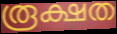
രൂക്ഷത